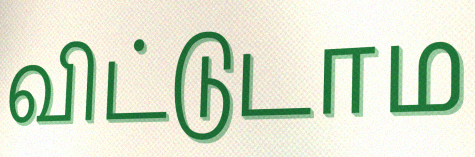
விட்டுடாம